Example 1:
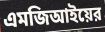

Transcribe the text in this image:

এমজিআইয়ের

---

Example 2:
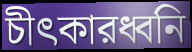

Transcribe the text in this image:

চীৎকারধ্বনি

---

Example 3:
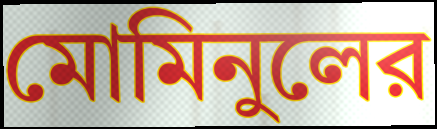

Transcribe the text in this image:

মোমিনুলের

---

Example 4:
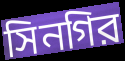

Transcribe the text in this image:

সিনগির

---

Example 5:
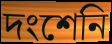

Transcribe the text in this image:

দংশেনি